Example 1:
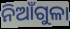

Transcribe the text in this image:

ନିଆଁଗୁଳା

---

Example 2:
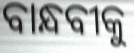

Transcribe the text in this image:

ବାନ୍ଧବୀକୁ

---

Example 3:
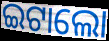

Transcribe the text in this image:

ଇଟାଲୋ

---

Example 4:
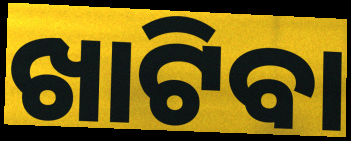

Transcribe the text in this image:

ଖାଟିବା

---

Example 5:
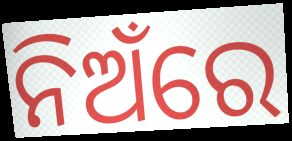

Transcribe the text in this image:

ନିଅଁରେ